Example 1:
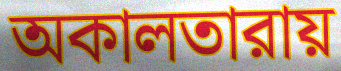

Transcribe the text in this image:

অকালতারায়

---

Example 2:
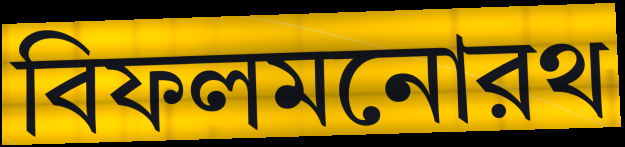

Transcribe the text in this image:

বিফলমনোরথ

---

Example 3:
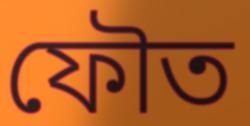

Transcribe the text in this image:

ফৌত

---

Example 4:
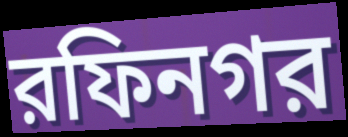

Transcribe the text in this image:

রফিনগর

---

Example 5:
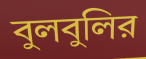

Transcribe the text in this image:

বুলবুলির